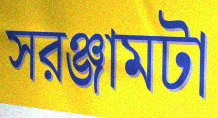
সরঞ্জামটা